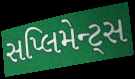
સપ્લિમેન્ટ્સ